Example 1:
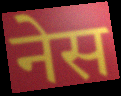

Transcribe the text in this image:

नेस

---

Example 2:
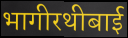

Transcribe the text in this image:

भागीरथीबाई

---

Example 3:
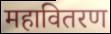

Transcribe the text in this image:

महावितरण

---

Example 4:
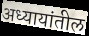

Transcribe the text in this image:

अध्यायांतील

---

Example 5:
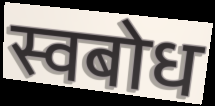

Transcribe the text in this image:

स्वबोध